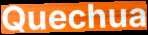
Quechua